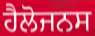
ਹੈਲੋਜਨਸ